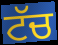
ਟੱਚ